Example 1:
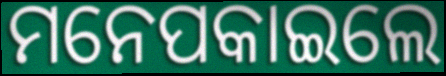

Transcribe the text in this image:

ମନେପକାଇଲେ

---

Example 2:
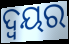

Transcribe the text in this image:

ଦ୍ଵୟର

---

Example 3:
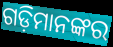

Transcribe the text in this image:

ଗଡ଼ିମାନଙ୍କର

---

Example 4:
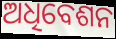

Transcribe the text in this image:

ଅଧିବେଶନ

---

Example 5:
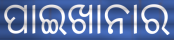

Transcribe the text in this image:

ପାଇଖାନାର